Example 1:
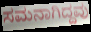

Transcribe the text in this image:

ಸಮನಾಗಿದ್ದವು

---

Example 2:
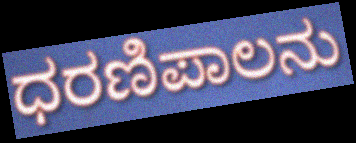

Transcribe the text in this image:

ಧರಣಿಪಾಲನು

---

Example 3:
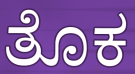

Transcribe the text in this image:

ತೊಕ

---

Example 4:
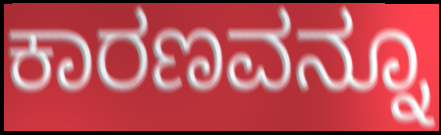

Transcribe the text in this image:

ಕಾರಣವನ್ನೂ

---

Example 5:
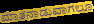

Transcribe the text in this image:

ಮಾತನಾಡುವಾಗಲೂ